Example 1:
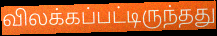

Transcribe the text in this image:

விலக்கப்பட்டிருந்தது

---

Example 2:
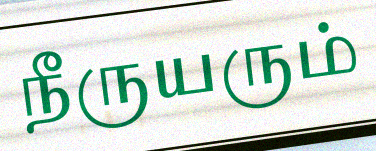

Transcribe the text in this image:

நீருயரும்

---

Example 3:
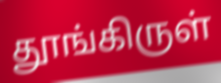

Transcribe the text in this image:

தூங்கிருள்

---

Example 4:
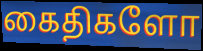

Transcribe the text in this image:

கைதிகளோ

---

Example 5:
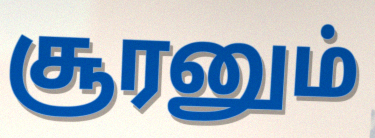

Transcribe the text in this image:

சூரனும்